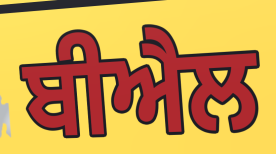
ਬੀਐਲ